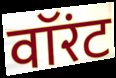
वॉरंट